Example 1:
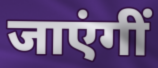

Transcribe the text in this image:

जाएंगीं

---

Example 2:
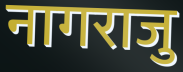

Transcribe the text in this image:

नागराजु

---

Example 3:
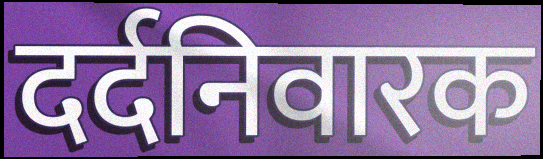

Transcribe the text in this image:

दर्दनिवारक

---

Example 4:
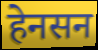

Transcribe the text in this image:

हेनसन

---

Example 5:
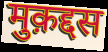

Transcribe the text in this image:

मुक़द्दस